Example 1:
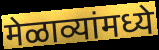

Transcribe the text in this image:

मेळाव्यांमध्ये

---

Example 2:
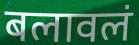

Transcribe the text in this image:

बलावलं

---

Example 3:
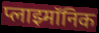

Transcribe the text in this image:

प्लाझ्मॉनिक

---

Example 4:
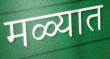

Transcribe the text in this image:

मळ्यात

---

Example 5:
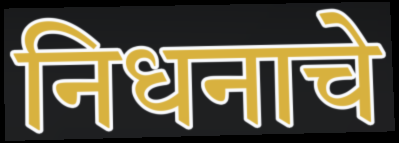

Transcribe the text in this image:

निधनाचे